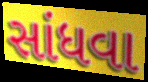
સાંધવા